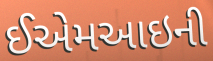
ઈએમઆઇની